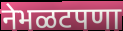
नेभळटपणा